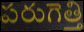
పరుగెత్తి